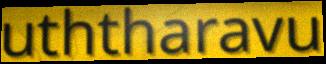
uththaravu